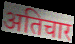
अतिचार